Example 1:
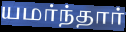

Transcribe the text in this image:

யமர்ந்தார்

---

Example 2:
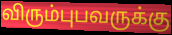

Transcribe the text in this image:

விரும்புபவருக்கு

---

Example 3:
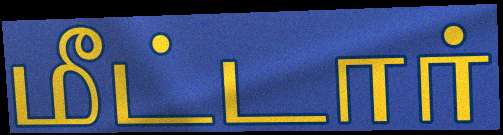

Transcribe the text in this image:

மீட்டார்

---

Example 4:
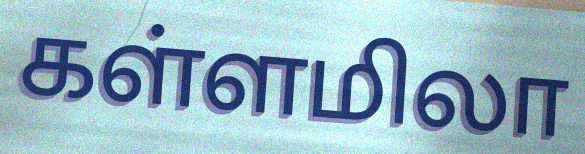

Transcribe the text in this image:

கள்ளமிலா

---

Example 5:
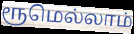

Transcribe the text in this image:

ரூமெல்லாம்